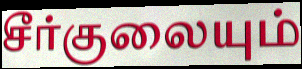
சீர்குலையும்